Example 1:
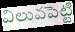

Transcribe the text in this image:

విలువపెట్టి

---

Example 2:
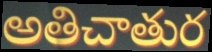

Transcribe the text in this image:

అతిచాతుర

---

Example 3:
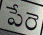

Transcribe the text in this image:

పేరె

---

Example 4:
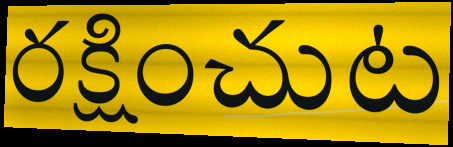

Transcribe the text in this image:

రక్షించుట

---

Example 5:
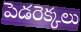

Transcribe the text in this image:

పెడరెక్కలు